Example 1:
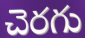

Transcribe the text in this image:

చెరగు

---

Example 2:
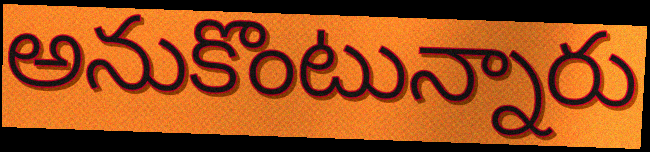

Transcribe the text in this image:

అనుకొంటున్నారు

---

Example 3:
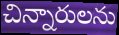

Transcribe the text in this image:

చిన్నారులను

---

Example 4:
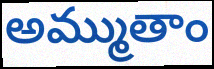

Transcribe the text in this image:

అమ్ముతాం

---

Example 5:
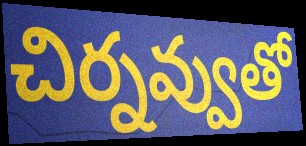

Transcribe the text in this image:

చిర్నవ్వుతో